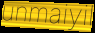
unmaiyil